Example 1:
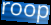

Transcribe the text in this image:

roop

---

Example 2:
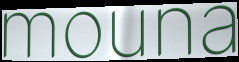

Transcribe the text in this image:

mouna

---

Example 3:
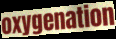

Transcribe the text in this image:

oxygenation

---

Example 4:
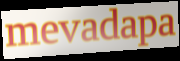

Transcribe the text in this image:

mevadapa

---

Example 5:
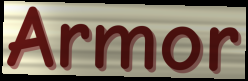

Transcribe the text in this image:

Armor